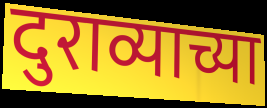
दुराव्याच्या